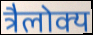
त्रैलोक्य